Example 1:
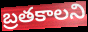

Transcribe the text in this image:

బ్రతకాలని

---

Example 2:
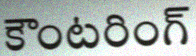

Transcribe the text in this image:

కౌంటరింగ్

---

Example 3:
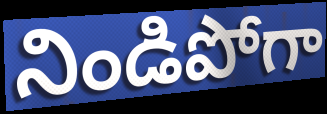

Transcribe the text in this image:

నిండిపోగా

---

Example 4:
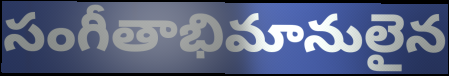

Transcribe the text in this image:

సంగీతాభిమానులైన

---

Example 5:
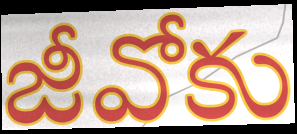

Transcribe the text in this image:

జీవోకు